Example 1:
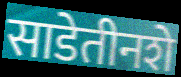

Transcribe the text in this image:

साडेतीनशे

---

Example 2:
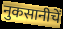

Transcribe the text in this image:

नुकसानीचें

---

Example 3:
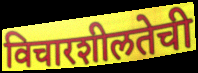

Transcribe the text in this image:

विचारशीलतेची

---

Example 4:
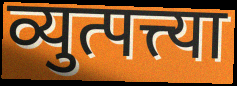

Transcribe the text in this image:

व्युत्पत्त्या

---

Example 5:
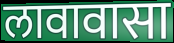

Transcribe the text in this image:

लावावासा